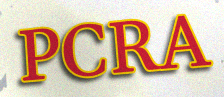
PCRA